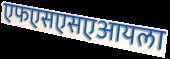
एफएसएसएआयला